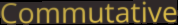
Commutative